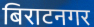
बिराटनगर